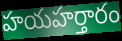
హయహర్తారం